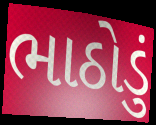
ભાઠોડું